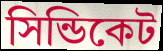
সিন্ডিকেট